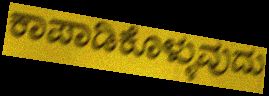
ಕಾಪಾಡಿಕೊಳ್ಳುವುದು